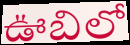
ఊబిలో